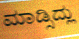
ಮಾಡ್ಸಿದ್ಲು